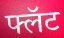
फ्लॅट